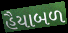
હૈયાબળ